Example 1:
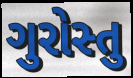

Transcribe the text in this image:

ગુરોસ્તુ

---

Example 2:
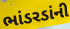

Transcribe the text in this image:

ભાંડરડાંની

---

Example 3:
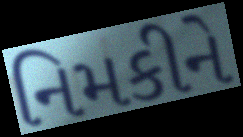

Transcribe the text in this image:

નિમકીને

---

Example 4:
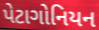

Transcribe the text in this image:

પેટાગોનિયન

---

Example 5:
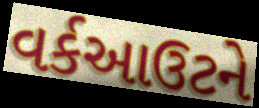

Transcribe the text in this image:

વર્કઆઉટને